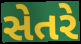
સેતરે